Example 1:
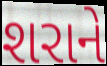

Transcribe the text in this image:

શરાને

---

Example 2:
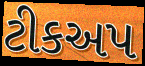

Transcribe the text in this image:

ટીકઅપ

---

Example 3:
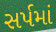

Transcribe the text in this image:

સર્પમાં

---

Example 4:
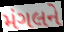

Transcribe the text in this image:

મંગલને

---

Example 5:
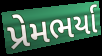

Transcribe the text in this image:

પ્રેમભર્યા